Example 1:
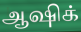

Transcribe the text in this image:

ஆஷிக்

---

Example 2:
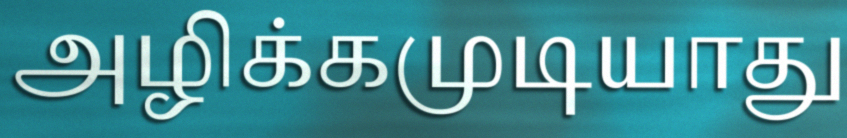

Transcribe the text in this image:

அழிக்கமுடியாது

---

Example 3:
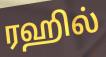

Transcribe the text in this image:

ரஹில்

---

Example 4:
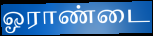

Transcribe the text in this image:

ஓராண்டை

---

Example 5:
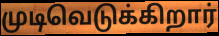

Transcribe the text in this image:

முடிவெடுக்கிறார்